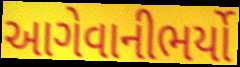
આગેવાનીભર્યો